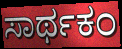
ಸಾರ್ಥಕಂ